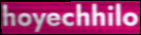
hoyechhilo